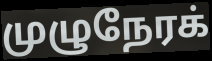
முழுநேரக்